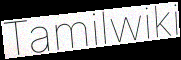
Tamilwiki